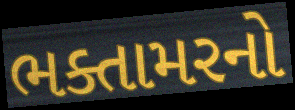
ભક્તામરનો